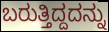
ಬರುತ್ತಿದ್ದದನ್ನು